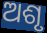
ଅଶୃ